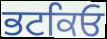
ਭਟਕਿਓ